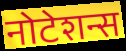
नोटेशन्स